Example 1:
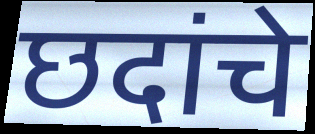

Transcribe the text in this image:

छदांचे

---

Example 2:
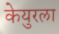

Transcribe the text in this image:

केयुरला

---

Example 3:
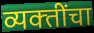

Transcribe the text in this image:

व्यक्‍तींचा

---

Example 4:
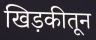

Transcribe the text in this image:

खिड़कीतून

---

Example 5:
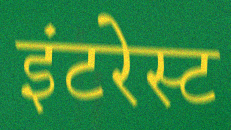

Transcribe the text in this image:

इंटरेस्ट